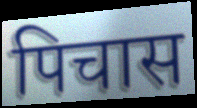
पिचास